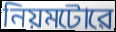
নিয়মটোৱে